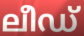
ലീഡ്